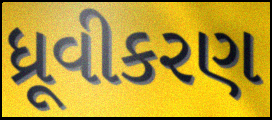
ધ્રૂવીકરણ